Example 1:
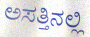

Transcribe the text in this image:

ಅಸತ್ತಿನಲ್ಲಿ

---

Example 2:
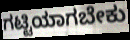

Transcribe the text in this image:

ಗಟ್ಟಿಯಾಗಬೇಕು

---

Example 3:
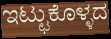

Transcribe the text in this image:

ಇಟ್ಟುಕೊಳ್ಳದ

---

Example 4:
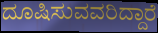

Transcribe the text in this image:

ದೂಷಿಸುವವರಿದ್ದಾರೆ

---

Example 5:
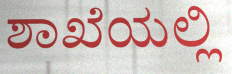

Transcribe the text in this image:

ಶಾಖೆಯಲ್ಲಿ